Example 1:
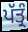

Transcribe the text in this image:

ਪੱਤ੍ਰੰ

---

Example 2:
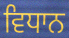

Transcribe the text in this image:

ਵਿਧਾਨ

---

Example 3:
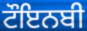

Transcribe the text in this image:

ਟੌਇਨਬੀ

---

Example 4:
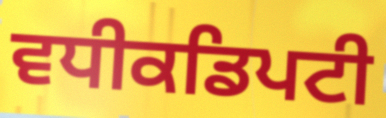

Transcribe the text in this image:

ਵਧੀਕਡਿਪਟੀ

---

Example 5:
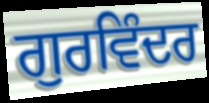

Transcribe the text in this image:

ਗੁਰਵਿੰਦਰ